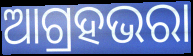
ଆଗ୍ରହଭରା